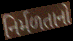
નિર્મળતાનો